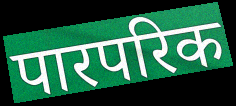
पारपरिक